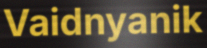
Vaidnyanik